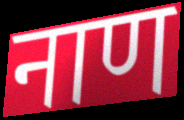
नाण